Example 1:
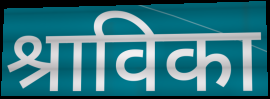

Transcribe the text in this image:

श्राविका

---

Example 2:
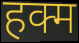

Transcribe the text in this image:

हक्म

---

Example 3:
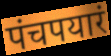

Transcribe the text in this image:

पंचपयारं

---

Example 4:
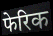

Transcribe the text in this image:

फेरिक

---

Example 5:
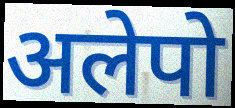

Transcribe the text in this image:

अलेपो